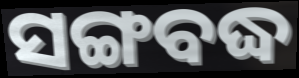
ସଙ୍ଗବଦ୍ଧ